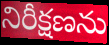
నిరీక్షణను